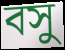
বসু